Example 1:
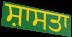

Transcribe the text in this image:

ਸ਼ਾਸਤਾ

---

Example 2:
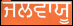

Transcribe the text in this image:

ਜਲਵਾਯੂ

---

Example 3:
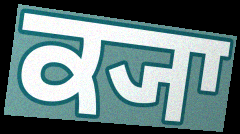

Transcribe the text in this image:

ਕ੍ਯਾ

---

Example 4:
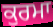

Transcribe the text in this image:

ਕੁਰਮਾ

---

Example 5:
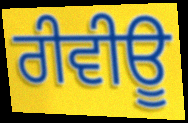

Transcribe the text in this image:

ਰੀਵੀਊ